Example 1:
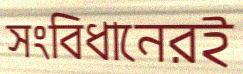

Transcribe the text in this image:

সংবিধানেরই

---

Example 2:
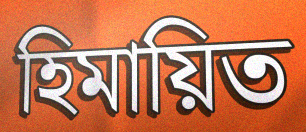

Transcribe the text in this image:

হিমায়িত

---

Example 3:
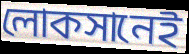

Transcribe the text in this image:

লোকসানেই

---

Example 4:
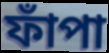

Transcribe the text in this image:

ফাঁপা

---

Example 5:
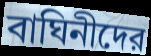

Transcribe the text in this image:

বাঘিনীদের